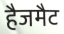
हैजमैट